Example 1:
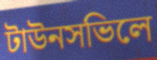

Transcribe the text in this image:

টাউনসভিলে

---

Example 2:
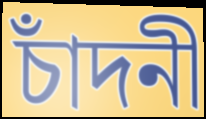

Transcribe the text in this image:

চাঁদনী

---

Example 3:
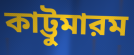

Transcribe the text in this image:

কাট্টুমারম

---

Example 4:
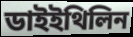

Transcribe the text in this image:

ডাইইথিলিন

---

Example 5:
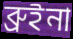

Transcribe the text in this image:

ব্রুইনা